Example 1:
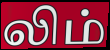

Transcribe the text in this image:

லிம்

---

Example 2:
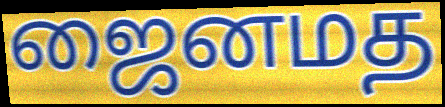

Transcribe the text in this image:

ஜைனமத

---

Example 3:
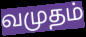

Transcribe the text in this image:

வமுதம்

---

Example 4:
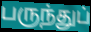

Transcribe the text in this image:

பருந்துப்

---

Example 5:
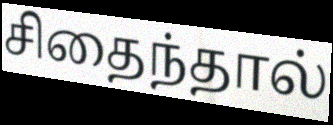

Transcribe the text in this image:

சிதைந்தால்